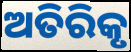
ଅତିରିକୃ